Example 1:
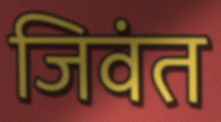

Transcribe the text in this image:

जिवंत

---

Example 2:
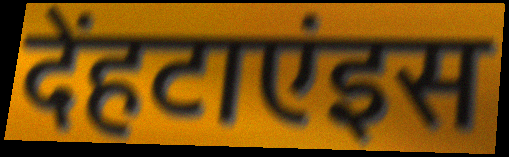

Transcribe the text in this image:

देंहटाएंइस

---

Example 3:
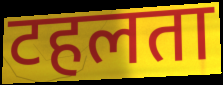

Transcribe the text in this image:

टहलता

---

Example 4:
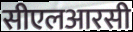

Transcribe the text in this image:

सीएलआरसी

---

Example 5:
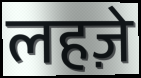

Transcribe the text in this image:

लहज़े